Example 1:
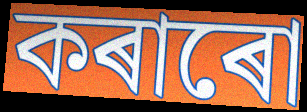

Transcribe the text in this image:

কৰাৰো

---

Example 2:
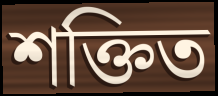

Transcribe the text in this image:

শক্তিত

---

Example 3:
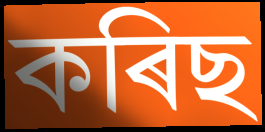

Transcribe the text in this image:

কৰিছ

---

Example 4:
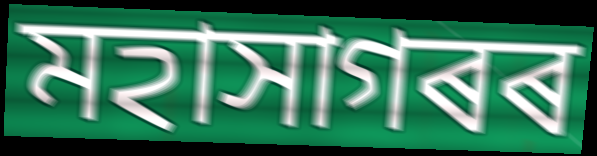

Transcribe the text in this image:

মহাসাগৰৰ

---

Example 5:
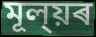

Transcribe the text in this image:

মূল্য়ৰ